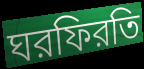
ঘরফিরতি